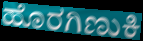
ಹೊರಗಿಣುಕಿ